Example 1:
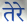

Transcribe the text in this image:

तेरे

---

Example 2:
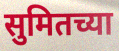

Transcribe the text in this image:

सुमितच्या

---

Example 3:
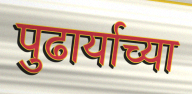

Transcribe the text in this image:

पुढार्याच्या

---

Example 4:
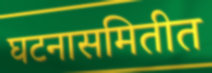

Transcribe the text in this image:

घटनासमितीत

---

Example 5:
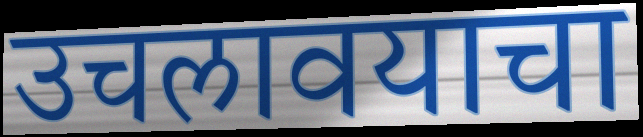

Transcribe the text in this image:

उचलावयाचा